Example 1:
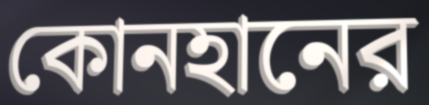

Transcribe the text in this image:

কোনহানের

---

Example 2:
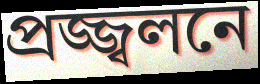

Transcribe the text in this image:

প্রজ্জ্বলনে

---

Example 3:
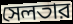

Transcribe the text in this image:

সেলতার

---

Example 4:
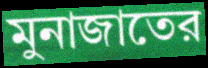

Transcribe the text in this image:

মুনাজাতের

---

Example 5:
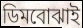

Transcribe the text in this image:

ডিমবোঝাই